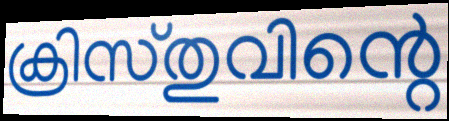
ക്രിസ്തുവിന്റെ